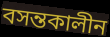
বসন্তকালীন